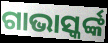
ଗାଭାସ୍କର୍ଙ୍କ